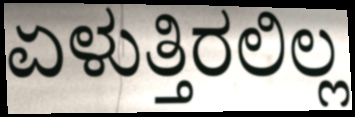
ಏಳುತ್ತಿರಲಿಲ್ಲ